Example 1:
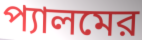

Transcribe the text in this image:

প্যালমের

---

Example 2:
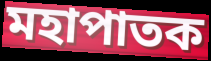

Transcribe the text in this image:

মহাপাতক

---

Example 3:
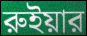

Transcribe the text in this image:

রুইয়ার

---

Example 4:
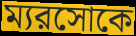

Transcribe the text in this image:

ম্যরসোকে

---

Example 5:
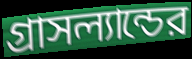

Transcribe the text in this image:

গ্রাসল্যান্ডের